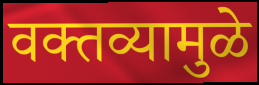
वक्तव्यामुळे